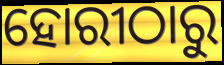
ହୋରୀଠାରୁ